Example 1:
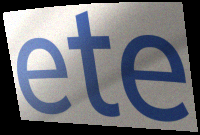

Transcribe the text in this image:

ete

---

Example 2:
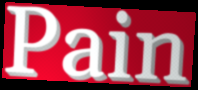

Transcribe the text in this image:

Pain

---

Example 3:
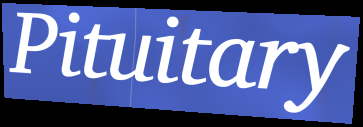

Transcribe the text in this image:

Pituitary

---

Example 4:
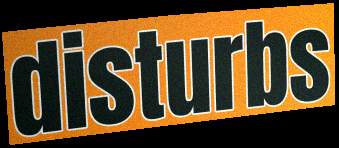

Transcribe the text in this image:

disturbs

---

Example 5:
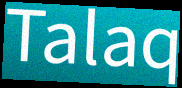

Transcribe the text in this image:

Talaq